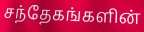
சந்தேகங்களின்